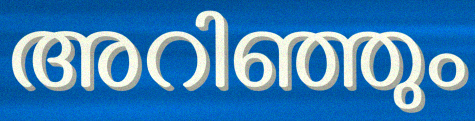
അറിഞ്ഞും